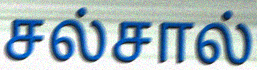
சல்சால்